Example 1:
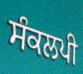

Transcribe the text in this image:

ਸੰਕਲਪੀ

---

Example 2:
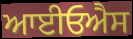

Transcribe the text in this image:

ਆਈਓਐਸ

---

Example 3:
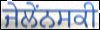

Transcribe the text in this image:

ਜੇਲੇਂਨਸਕੀ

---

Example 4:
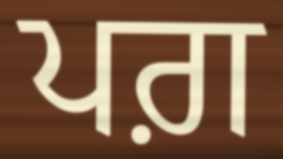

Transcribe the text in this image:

ਪਗ਼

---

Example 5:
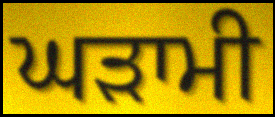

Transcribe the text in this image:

ਘੜਾਮੀ